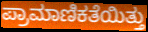
ಪ್ರಾಮಾಣಿಕತೆಯಿತ್ತು